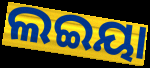
ଲଇୟା